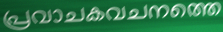
പ്രവാചകവചനത്തെ